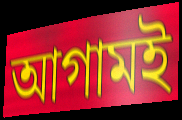
আগামই